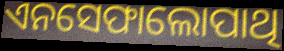
ଏନସେଫାଲୋପାଥି